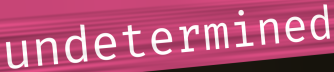
undetermined